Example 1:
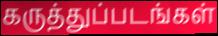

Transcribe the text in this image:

கருத்துப்படங்கள்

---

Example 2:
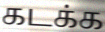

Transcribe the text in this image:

கடக்க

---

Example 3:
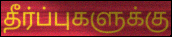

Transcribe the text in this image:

தீர்ப்புகளுக்கு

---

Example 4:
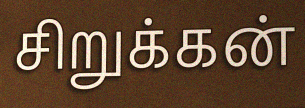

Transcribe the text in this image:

சிறுக்கன்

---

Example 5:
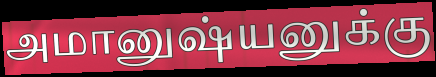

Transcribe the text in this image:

அமானுஷ்யனுக்கு